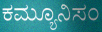
ಕಮ್ಯೂನಿಸಂ